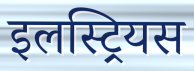
इलस्ट्रियस